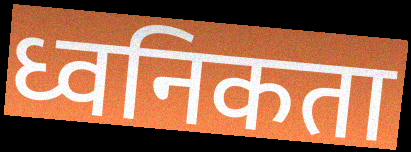
ध्वनिकता